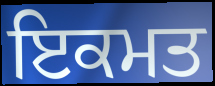
ਇਕਮਤ